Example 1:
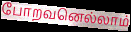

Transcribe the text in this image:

போறவனெல்லாம்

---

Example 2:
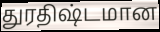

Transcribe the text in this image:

துரதிஷ்டமான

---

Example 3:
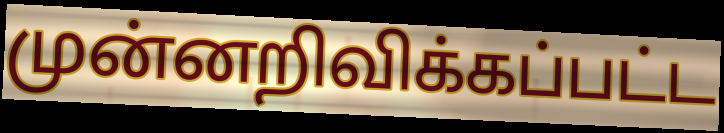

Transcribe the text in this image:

முன்னறிவிக்கப்பட்ட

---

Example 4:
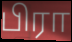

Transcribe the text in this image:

பிரா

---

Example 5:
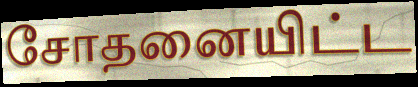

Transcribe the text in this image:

சோதனையிட்ட